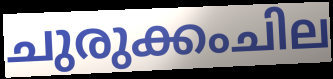
ചുരുക്കംചില